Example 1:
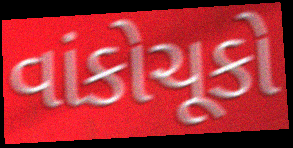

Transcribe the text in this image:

વાંકોચૂકો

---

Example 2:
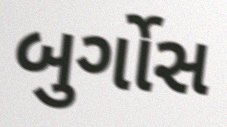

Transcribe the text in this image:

બુર્ગોસ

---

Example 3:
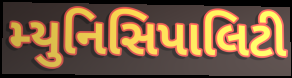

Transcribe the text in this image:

મ્યુનિસિપાલિટી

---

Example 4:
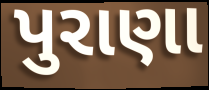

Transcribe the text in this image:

પુરાણા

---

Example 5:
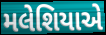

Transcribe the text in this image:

મલેશિયાએ